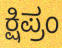
ಕ್ಷಿಪ್ರಂ